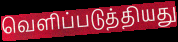
வெளிப்படுத்தியது